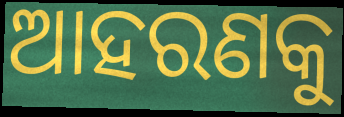
ଆହରଣକୁ